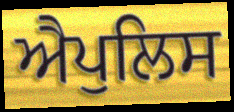
ਐਪੁਲਿਸ